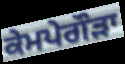
ਕੇਮਪੇਗੌੜਾ